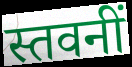
स्तवनीं